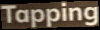
Tapping